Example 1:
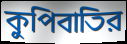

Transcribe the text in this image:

কুপিবাতির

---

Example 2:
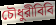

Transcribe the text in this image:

চৌধুরীবিবি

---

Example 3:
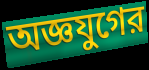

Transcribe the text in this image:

অজ্ঞযুগের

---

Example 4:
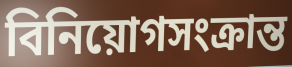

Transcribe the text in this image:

বিনিয়োগসংক্রান্ত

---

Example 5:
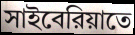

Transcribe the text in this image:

সাইবেরিয়াতে